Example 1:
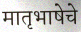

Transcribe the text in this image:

मातृभाषेचे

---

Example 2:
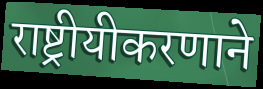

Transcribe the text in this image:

राष्ट्रीयीकरणाने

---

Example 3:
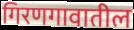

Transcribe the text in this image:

गिरणगावातील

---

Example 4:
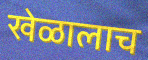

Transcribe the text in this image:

खेळालाच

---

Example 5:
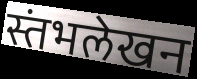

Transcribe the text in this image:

स्तंभलेखन